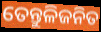
ତେନ୍ତୁଳିଜନିତ